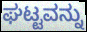
ಘಟ್ಟವನ್ನು